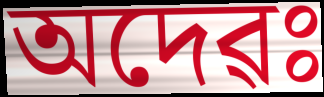
অদেৱঃ